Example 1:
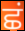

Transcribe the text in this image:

ਛਂ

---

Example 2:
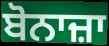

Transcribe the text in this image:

ਬੋਨਾਜ਼ਾ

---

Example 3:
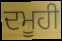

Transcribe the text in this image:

ਦਮੂਹੀ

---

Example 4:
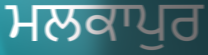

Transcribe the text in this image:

ਮਲਕਾਪੁਰ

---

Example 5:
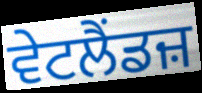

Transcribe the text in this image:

ਵੇਟਲੈਂਡਜ਼